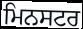
ਮਿਨਸਟਰ